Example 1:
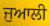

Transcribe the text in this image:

ਜੁਆਲੀ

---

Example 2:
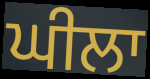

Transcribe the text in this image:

ਘੀਲਾ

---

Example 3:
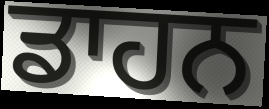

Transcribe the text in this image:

ਡਾਹਨ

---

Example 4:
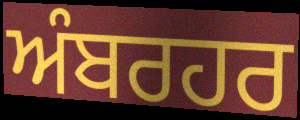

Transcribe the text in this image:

ਅੰਬਰਹਰ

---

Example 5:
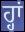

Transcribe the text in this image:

ਹ੍ਹਾਂ